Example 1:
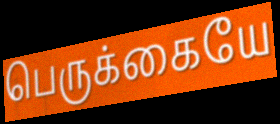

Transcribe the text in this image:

பெருக்கையே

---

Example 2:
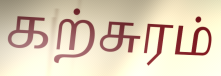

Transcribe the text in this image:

கற்சுரம்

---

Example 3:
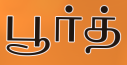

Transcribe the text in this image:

பூர்த்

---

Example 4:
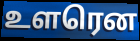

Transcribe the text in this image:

உளரென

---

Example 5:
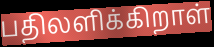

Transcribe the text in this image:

பதிலளிக்கிறாள்